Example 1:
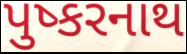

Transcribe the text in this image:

પુષ્કરનાથ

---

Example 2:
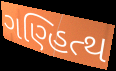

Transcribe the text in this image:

ગણ્હિત્થ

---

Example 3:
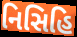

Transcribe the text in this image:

નિસિહિ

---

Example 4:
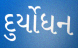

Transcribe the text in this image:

દુર્યોધન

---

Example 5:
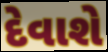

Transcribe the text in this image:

દેવાશે